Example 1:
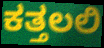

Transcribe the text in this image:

ಕತ್ತಲಲಿ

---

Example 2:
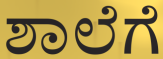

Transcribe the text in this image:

ಶಾಲೆಗೆ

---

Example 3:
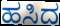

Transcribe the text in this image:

ಹಸಿದ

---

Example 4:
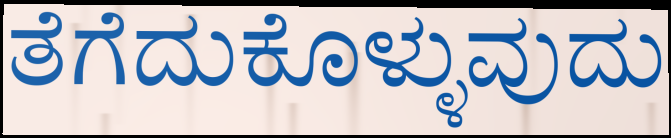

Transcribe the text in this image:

ತೆಗೆದುಕೊಳ್ಳುವುದು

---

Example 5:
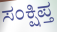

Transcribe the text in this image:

ಸಂಕ್ಷಿಪ್ತ